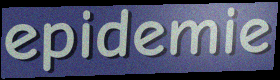
epidemie